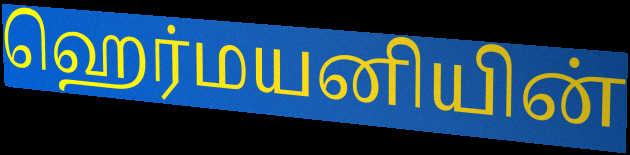
ஹெர்மயனியின்